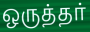
ஒருத்தர்